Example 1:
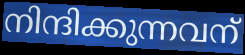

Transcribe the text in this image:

നിന്ദിക്കുന്നവന്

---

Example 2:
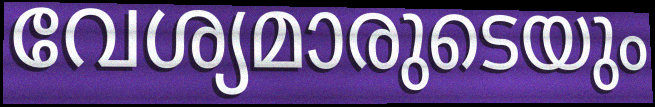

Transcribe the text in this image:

വേശ്യമാരുടെയും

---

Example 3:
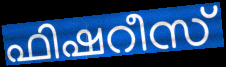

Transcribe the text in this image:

ഫിഷറീസ്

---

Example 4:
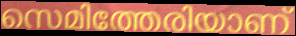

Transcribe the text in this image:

സെമിത്തേരിയാണ്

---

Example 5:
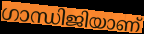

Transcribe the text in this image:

ഗാന്ധിജിയാണ്